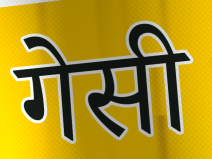
गेसी